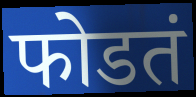
फोडतं